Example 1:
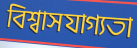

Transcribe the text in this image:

বিশ্বাসযাগ্যতা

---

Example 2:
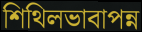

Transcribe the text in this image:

শিথিলভাবাপন্ন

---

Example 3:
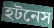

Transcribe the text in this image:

হটনেস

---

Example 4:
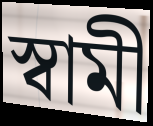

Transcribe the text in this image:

স্বামী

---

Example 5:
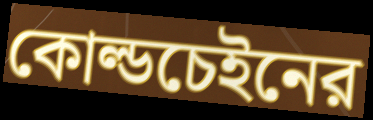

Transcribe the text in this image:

কোল্ডচেইনের